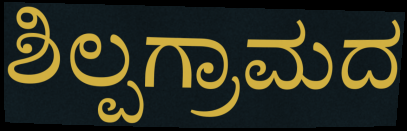
ಶಿಲ್ಪಗ್ರಾಮದ